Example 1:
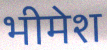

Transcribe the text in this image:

भीमेश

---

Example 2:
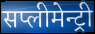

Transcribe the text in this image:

सप्लीमेन्ट्री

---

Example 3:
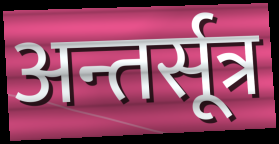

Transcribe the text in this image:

अन्तर्सूत्र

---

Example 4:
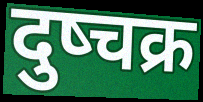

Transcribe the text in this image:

दुष्चक्र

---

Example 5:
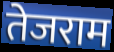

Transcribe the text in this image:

तेजराम